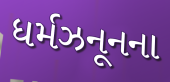
ધર્મઝનૂનના